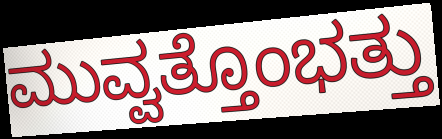
ಮುವ್ವತ್ತೊಂಭತ್ತು